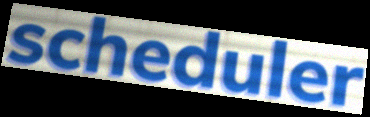
scheduler